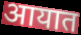
आयात